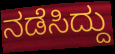
ನಡೆಸಿದ್ದು